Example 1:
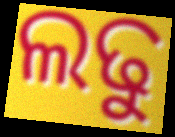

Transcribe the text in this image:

ଲଢୁ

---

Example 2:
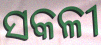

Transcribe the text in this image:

ସକଳୀ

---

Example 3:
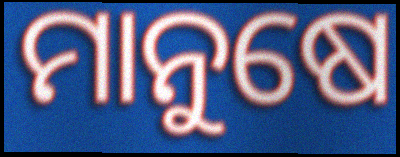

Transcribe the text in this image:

ମାନୁଷେ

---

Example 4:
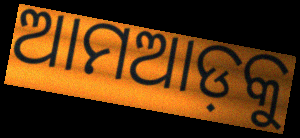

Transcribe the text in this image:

ଆମଆଡ଼କୁ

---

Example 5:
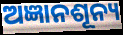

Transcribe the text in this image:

ଅଜ୍ଞାନଶୂନ୍ୟ